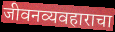
जीवनव्यवहाराचा